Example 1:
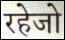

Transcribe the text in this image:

रहेजो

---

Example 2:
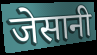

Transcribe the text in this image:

जेसानी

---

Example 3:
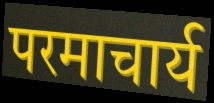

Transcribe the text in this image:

परमाचार्य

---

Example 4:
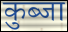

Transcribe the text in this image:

कुब्जा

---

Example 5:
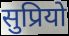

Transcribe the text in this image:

सुप्रियो